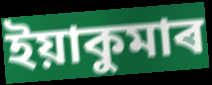
ইয়াকুমাৰ